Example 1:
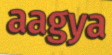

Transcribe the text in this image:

aagya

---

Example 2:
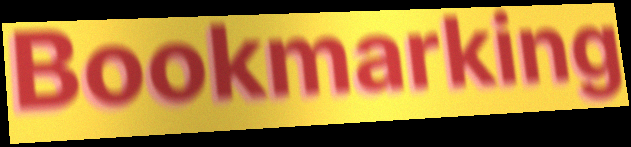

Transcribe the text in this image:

Bookmarking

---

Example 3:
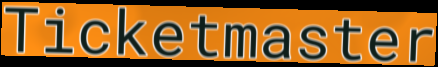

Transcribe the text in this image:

Ticketmaster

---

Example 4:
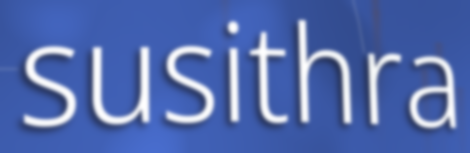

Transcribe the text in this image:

susithra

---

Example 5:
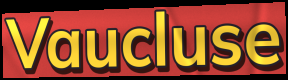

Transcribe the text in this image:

Vaucluse